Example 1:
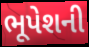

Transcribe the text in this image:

ભૂપેશની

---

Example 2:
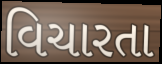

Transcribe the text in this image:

વિચારતા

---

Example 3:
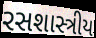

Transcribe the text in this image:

રસશાસ્ત્રીય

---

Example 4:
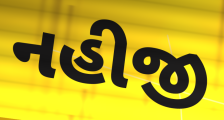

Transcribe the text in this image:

નહીજી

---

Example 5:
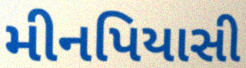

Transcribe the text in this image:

મીનપિયાસી